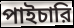
পাইচারি